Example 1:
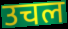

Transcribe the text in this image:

उचल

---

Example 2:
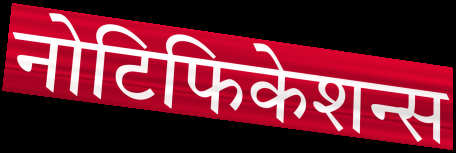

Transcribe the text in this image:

नोटिफिकेशन्स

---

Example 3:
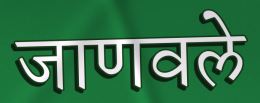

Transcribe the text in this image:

जाणवले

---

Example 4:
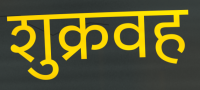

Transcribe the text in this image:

शुक्रवह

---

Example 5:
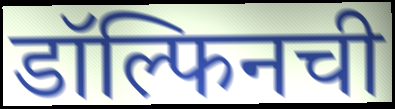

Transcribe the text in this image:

डॉल्फिनची